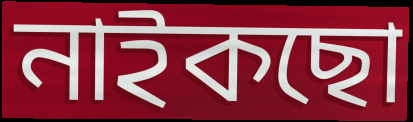
নাইকছো